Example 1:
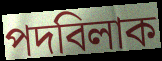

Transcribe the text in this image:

পদবিলাক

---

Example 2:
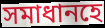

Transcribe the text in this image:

সমাধানহে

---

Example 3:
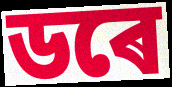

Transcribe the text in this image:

ডৰে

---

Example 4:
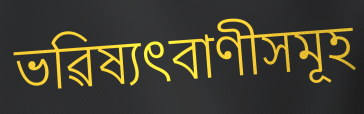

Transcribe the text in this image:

ভৱিষ্যৎবাণীসমূহ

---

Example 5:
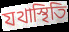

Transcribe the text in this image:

যথাস্থিতি